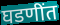
घडणींत